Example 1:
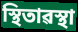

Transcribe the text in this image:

স্থিতাৱস্থা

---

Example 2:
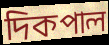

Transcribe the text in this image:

দিকপাল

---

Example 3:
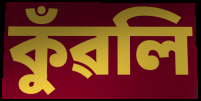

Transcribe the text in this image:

কুঁৱলি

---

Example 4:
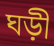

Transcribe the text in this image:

ঘড়ী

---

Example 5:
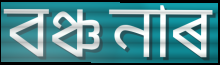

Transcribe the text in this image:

বঞ্চনাৰ